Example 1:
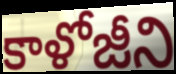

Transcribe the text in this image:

కాళోజీని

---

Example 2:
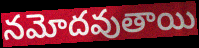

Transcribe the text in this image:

నమోదవుతాయి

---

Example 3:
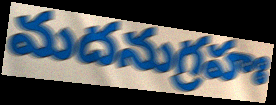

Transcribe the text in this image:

మదనుగ్రహః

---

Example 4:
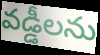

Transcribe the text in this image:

వడ్డీలను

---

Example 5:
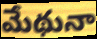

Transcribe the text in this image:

మేథునా